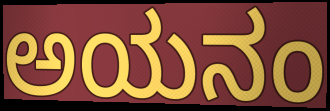
ಅಯನಂ